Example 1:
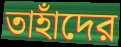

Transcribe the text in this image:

তাহাঁদের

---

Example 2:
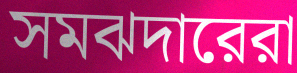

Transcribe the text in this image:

সমঝদারেরা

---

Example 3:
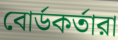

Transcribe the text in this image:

বোর্ডকর্তারা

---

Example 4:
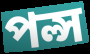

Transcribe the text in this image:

পল্স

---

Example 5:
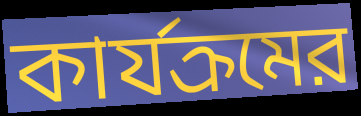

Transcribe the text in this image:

কার্যক্রমের